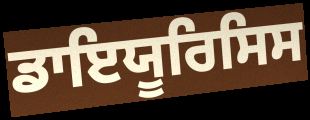
ਡਾਇਯੂਰਿਸਿਸ